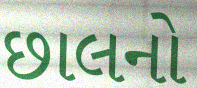
છાલનો